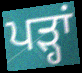
ਪੜ੍ਹਾਂ